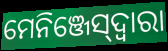
ମେନିଞ୍ଜେସ୍‌ଦ୍ୱାରା